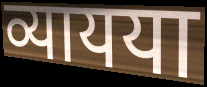
व्यायया